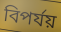
বিপর্যয়